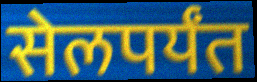
सेलपर्यंत